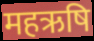
महऋषि